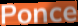
Ponce